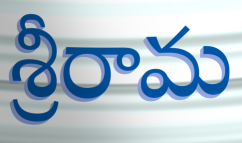
శ్రీరామ